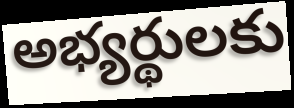
అభ్యర్థులకు